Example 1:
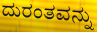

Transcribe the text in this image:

ದುರಂತವನ್ನು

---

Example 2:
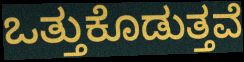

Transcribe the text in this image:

ಒತ್ತುಕೊಡುತ್ತವೆ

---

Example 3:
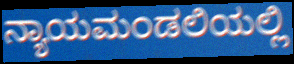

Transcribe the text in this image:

ನ್ಯಾಯಮಂಡಲಿಯಲ್ಲಿ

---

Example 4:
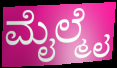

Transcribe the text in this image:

ಮೈಲ್ಮೈ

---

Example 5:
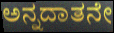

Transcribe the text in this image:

ಅನ್ನದಾತನೇ